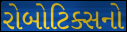
રોબોટિક્સનો